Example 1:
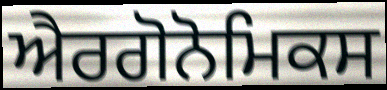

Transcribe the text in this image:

ਐਰਗੋਨੋਮਿਕਸ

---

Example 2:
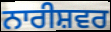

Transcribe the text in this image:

ਨਾਰੀਸ਼ਵਰ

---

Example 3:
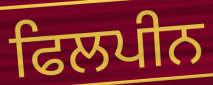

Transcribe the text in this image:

ਫਿਲਪੀਨ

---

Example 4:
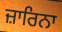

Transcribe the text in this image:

ਜ਼ਾਰਿਨਾ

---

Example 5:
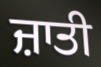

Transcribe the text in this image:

ਜ਼ਾਤੀ